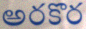
అరకొర